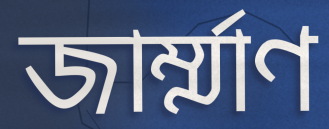
জার্ম্মাণ